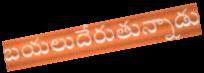
బయలుదేరుతున్నాడు